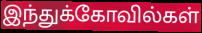
இந்துக்கோவில்கள்